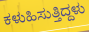
ಕಳುಹಿಸುತ್ತಿದ್ದಳು